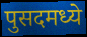
पुसदमध्ये